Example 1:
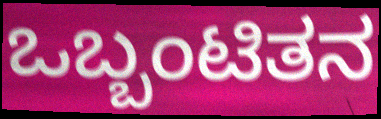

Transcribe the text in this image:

ಒಬ್ಬಂಟಿತನ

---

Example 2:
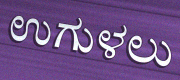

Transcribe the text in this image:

ಉಗುಳಲು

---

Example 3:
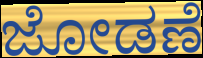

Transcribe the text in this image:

ಜೋಡಣೆ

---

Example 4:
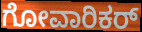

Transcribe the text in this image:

ಗೋವಾರಿಕರ್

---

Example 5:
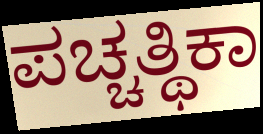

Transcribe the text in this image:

ಪಚ್ಚತ್ಥಿಕಾ